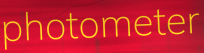
photometer